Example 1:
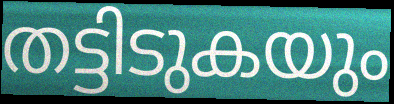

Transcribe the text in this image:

തട്ടിടുകയും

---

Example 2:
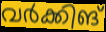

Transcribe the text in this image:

വർക്കിങ്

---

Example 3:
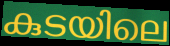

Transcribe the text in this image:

കുടയിലെ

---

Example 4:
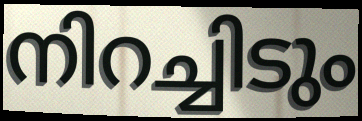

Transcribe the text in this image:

നിറച്ചിടും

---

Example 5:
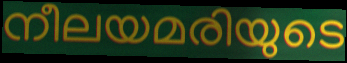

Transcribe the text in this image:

നീലയമരിയുടെ